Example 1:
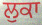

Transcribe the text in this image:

ਲੁਕਾ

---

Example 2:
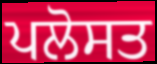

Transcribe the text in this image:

ਪਲੋਸਤ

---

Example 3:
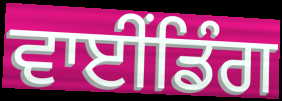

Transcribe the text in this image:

ਵਾਈਂਡਿੰਗ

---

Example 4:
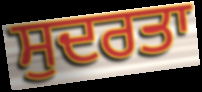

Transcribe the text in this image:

ਸੁਦਰਤਾ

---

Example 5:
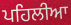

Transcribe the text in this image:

ਪਹਿਲੀਆ